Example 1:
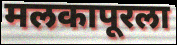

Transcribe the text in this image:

मलकापूरला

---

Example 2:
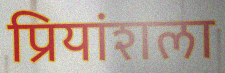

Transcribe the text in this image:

प्रियांशला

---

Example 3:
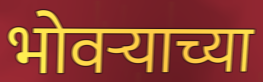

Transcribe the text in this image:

भोवऱ्याच्या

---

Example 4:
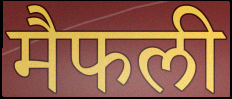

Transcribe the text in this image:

मैफली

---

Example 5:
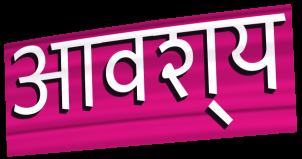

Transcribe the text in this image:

आवश्य